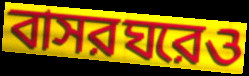
বাসরঘরেও